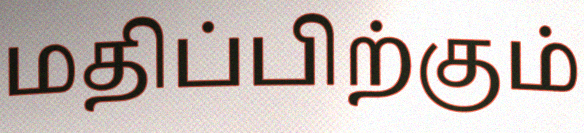
மதிப்பிற்கும்